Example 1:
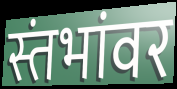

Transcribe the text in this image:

स्तंभांवर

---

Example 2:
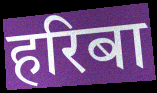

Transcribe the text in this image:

हरिबा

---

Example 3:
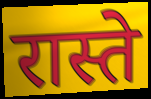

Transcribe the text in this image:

रास्ते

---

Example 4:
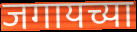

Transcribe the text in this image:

जगायच्या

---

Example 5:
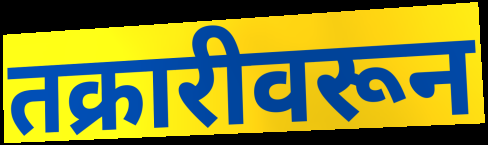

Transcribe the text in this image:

तक्रारीवरून